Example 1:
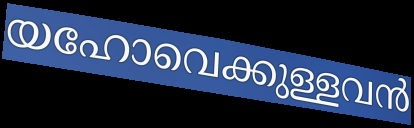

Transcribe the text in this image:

യഹോവെക്കുള്ളവൻ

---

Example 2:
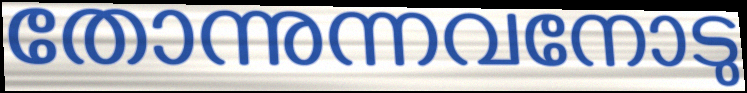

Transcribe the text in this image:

തോന്നുന്നവനോടു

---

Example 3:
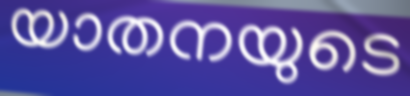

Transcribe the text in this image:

യാതനയുടെ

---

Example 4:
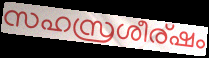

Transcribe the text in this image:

സഹസ്രശീര്ഷം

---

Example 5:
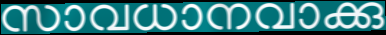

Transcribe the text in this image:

സാവധാനവാക്കു